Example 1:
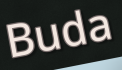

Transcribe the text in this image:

Buda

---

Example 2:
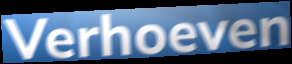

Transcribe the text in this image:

Verhoeven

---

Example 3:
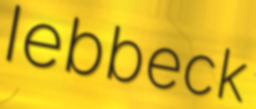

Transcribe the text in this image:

lebbeck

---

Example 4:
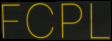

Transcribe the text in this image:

FCPL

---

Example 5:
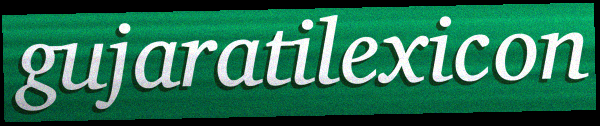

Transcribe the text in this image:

gujaratilexicon